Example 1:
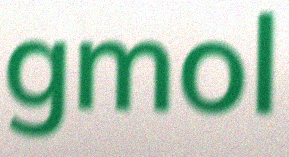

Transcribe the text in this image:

gmol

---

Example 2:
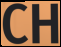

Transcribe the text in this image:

CH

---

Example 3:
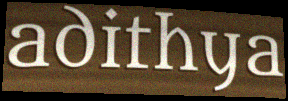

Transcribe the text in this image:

adithya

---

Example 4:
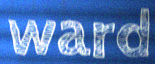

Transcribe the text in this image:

ward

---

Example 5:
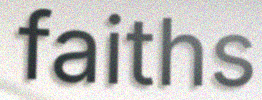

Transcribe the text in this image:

faiths